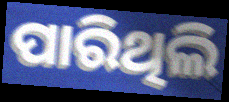
ପାରିଥିଲି